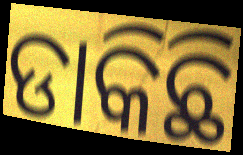
ଡାକିଛି